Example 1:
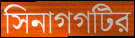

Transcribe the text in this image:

সিনাগগটির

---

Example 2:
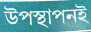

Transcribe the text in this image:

উপস্থাপনই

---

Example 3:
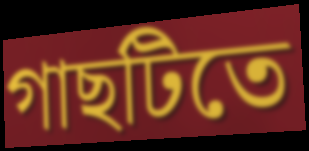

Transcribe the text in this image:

গাছটিতে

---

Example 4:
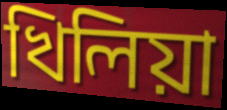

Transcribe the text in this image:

খিলিয়া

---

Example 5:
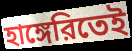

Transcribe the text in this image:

হাঙ্গেরিতেই